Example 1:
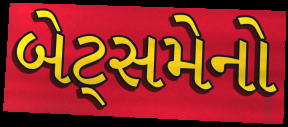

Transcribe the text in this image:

બેટ્સમેનો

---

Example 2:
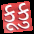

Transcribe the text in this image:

કૂકુ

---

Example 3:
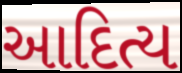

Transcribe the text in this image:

આદિત્ય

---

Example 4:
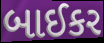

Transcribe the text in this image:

બાઈકર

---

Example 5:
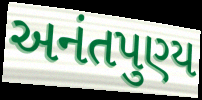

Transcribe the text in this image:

અનંતપુણ્ય